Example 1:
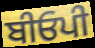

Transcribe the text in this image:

ਬੀਓਪੀ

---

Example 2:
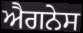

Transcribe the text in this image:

ਐਗਨੇਸ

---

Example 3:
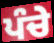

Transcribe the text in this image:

ਪੰਚੇ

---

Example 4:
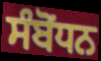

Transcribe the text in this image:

ਸੰਬੋੰਧਨ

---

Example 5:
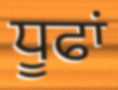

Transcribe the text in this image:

ਧੂਫਾਂ